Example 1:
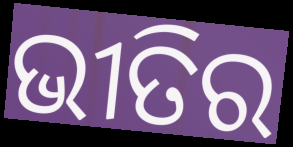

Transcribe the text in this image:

ଭୀତିର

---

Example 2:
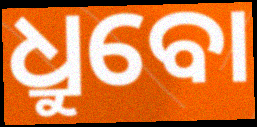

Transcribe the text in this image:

ଧ୍ରୁବୋ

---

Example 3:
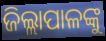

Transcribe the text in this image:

ଜିଲ୍ଲାପାଳଙ୍କୁ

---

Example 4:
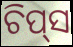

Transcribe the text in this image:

ଚିପ୍‌ସ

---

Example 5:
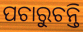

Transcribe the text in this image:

ପଚାରୁଚନ୍ତି